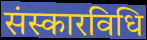
संस्कारविधि